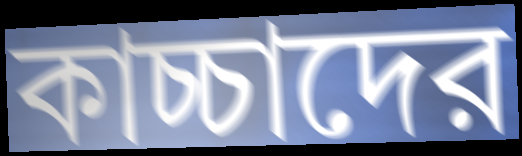
কাচ্চাদের